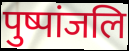
पुष्पांजलि